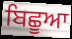
ਬਿਛੂਆ